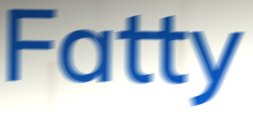
Fatty